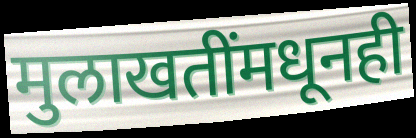
मुलाखतींमधूनही